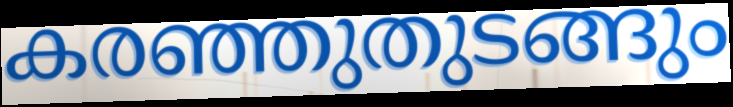
കരഞ്ഞുതുടങ്ങും